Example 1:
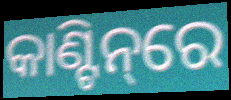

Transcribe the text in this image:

କାଣ୍ଟିନ୍‌ରେ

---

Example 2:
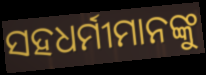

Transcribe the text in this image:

ସହଧର୍ମୀମାନଙ୍କୁ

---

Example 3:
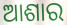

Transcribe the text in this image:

ଆଶାର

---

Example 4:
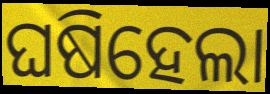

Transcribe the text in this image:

ଘଷିହେଲା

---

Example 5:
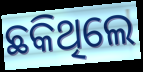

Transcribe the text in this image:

ଛକିଥିଲେ